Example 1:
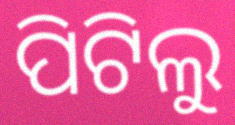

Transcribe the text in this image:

ପିଟିଲୁ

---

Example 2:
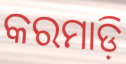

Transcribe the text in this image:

କରମାଡ଼ି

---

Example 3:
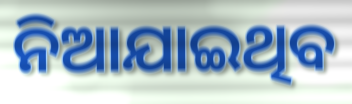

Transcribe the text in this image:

ନିଆଯାଇଥିବ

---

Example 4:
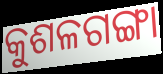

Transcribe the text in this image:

କୁଶଳଗଙ୍ଗା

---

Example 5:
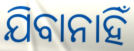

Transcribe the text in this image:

ଯିବାନାହିଁ